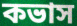
কভাস